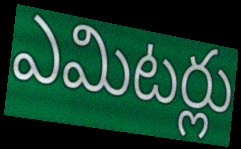
ఎమిటర్లు